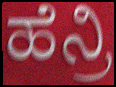
ಹೆನ್ರಿ